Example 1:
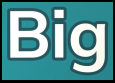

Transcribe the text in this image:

Big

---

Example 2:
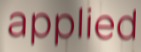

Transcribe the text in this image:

applied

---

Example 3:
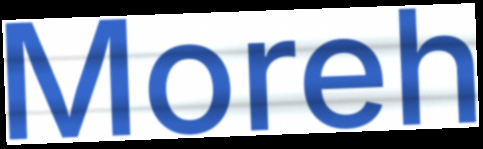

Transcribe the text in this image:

Moreh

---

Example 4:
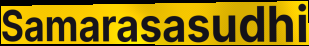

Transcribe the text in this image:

Samarasasudhi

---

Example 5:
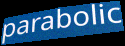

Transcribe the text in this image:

parabolic